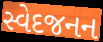
સ્વેદજનન